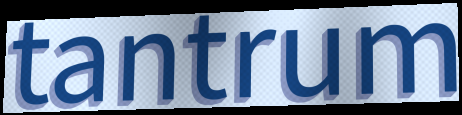
tantrum